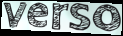
verso